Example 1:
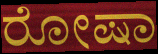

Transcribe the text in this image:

ರೋಷಾ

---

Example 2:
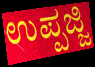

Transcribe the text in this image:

ಉಪ್ಪಜ್ಜಿ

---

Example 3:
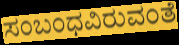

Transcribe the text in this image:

ಸಂಬಂಧವಿರುವಂತೆ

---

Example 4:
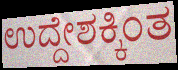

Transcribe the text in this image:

ಉದ್ದೇಶಕ್ಕಿಂತ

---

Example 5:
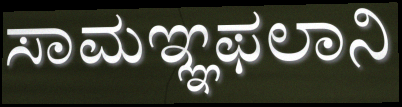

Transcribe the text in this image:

ಸಾಮಞ್ಞಫಲಾನಿ